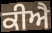
ਕੀਐ